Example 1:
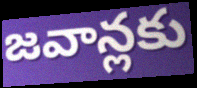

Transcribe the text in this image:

జవాన్లకు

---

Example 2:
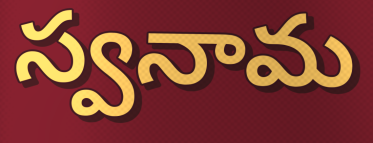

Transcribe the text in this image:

స్వనామ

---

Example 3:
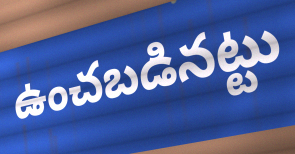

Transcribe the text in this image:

ఉంచబడినట్టు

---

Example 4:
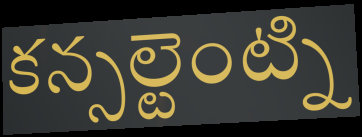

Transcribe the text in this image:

కన్సల్టెంట్ని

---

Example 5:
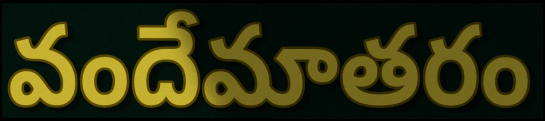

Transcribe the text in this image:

వందేమాతరం